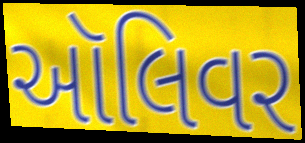
ઑલિવર